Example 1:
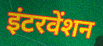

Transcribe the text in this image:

इंटरवेंशन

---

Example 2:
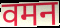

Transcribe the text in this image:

वमन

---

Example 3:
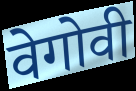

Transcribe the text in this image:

वेगोवी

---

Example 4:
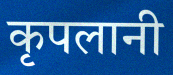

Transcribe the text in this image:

कृपलानी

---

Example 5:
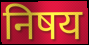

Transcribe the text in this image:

निषय